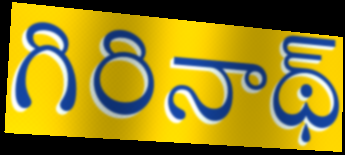
గిరినాథ్